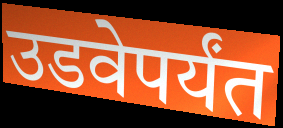
उडवेपर्यंत